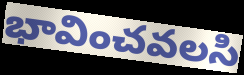
భావించవలసి